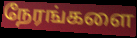
நேரங்களை